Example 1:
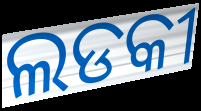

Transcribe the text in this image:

ଲଡକୀ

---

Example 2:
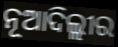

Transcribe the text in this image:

ନୂଆଦିଲ୍ଲୀର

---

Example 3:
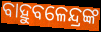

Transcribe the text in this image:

ବାହୁବଳେନ୍ଦ୍ରଙ୍କ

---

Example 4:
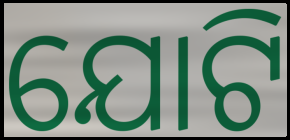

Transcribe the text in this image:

ଯୋଟି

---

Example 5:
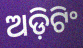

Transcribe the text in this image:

ଅଡ଼ିଟିଂ